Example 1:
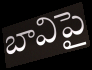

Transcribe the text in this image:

బావిపై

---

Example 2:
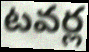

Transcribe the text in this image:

టవర్ల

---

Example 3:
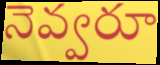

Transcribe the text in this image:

నెవ్వరూ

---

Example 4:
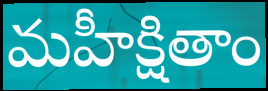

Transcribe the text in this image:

మహీక్షితాం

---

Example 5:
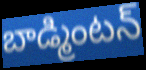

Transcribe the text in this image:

బాడ్మింటన్